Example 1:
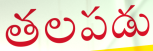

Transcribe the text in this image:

తలపడు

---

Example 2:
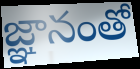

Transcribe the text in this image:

జ్ఞానంతో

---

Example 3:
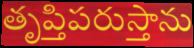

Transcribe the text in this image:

తృప్తిపరుస్తాను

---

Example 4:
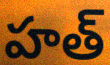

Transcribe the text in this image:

హత్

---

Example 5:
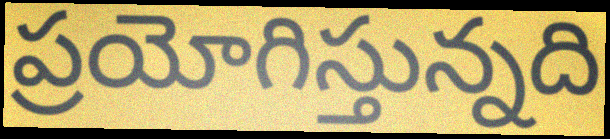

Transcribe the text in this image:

ప్రయోగిస్తున్నది